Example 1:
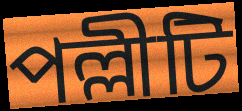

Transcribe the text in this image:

পল্লীটি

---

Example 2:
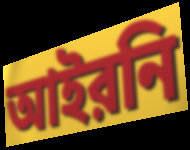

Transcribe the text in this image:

আইরনি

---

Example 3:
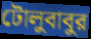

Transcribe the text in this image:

টোলুবাবুর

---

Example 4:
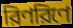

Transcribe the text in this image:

রিণরিণে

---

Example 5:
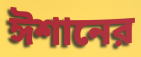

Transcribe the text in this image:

ঈশানের